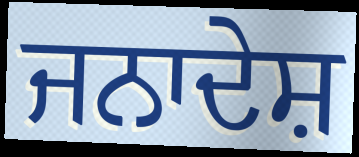
ਜਨਾਦੇਸ਼